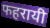
फहरायी